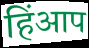
हिंआप